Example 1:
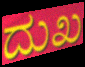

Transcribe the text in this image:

ದುಖ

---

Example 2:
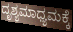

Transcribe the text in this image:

ದೃಶ್ಯಮಾಧ್ಯಮಕ್ಕೆ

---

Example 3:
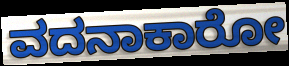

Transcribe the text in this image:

ವದನಾಕಾರೋ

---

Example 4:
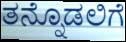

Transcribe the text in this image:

ತನ್ನೊಡಲಿಗೆ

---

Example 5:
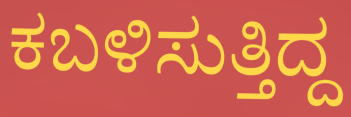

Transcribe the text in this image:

ಕಬಳಿಸುತ್ತಿದ್ದ